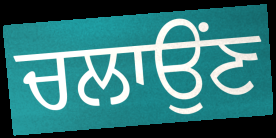
ਚਲਾਉਂਣ